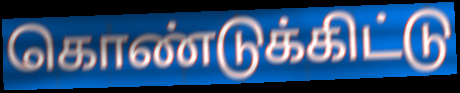
கொண்டுக்கிட்டு